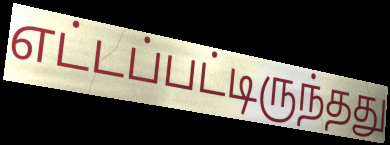
எட்டப்பட்டிருந்தது